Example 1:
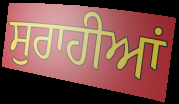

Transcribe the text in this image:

ਸੁਰਾਹੀਆਂ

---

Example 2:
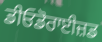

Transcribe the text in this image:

ਡੀਓਡੋਰਾਈਜ਼ਡ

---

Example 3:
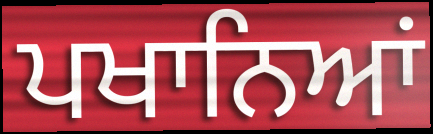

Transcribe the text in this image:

ਪਖਾਨਿਆਂ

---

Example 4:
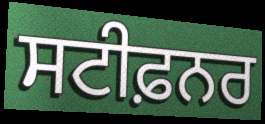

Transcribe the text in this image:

ਸਟੀਫ਼ਨਰ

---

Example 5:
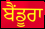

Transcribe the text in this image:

ਬੈਂਡੂਰਾ